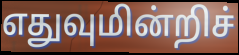
எதுவுமின்றிச்